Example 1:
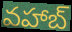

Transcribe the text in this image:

వహాబ్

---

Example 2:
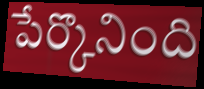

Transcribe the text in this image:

పేర్కొనింది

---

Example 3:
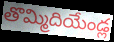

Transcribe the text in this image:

తొమ్మిదియేండ్ల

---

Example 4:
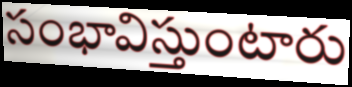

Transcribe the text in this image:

సంభావిస్తుంటారు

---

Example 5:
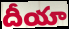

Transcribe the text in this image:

దీయా